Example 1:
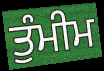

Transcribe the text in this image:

ਤੁੰਮੀਮ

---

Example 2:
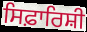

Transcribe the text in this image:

ਸਿਫ਼ਾਰਿਸ਼ੀ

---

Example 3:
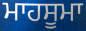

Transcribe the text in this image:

ਮਾਹਸੂਮਾ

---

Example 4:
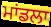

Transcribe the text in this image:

ਮਾਂਡਲਾ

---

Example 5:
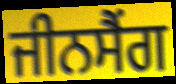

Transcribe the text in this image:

ਜੀਨਸੈਂਗ